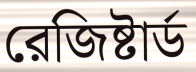
রেজিষ্টার্ড